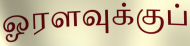
ஓரளவுக்குப்